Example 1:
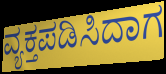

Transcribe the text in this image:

ವ್ಯಕ್ತಪಡಿಸಿದಾಗ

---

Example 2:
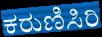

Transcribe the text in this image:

ಕರುಣಿಸಿರಿ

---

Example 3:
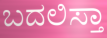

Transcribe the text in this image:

ಬದಲಿಸ್ತಾ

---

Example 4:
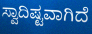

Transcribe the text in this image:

ಸ್ವಾದಿಷ್ಟವಾಗಿದೆ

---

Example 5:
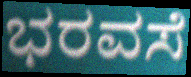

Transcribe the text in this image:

ಭರವಸೆ